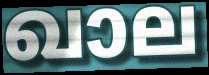
ഖാല